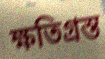
ক্ষতিগ্ৰস্ত